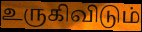
உருகிவிடும்